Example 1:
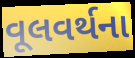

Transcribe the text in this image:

વૂલવર્થના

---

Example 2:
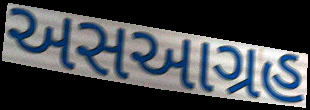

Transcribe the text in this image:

અસઆગ્રહ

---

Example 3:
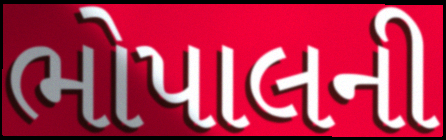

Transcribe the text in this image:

ભોપાલની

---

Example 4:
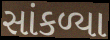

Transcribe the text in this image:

સાંકળ્યા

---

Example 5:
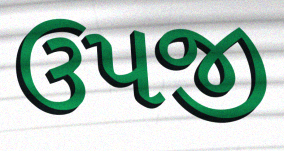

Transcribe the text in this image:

ઉપજી